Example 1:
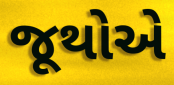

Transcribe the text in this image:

જૂથોએ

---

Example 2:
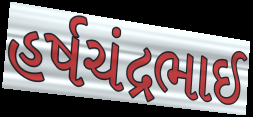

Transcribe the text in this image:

હર્ષચંદ્રભાઈ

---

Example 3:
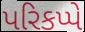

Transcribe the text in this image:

પરિકપ્પે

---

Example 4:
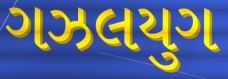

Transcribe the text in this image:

ગઝલયુગ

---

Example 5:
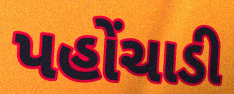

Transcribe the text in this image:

પહોંચાડી